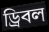
ড্রিবল